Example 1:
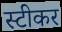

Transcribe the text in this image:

स्टीकर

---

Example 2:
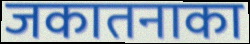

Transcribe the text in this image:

जकातनाका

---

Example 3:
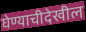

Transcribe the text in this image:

घेण्याचीदेखील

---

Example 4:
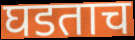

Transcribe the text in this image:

घडताच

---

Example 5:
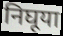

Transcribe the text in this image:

निघूया